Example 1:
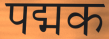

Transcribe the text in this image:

पद्मक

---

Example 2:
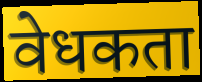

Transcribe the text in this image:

वेधकता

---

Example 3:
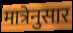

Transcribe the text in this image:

मात्रेनुसार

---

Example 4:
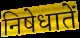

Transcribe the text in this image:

निषेधातें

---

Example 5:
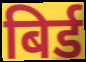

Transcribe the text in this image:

बिर्ड